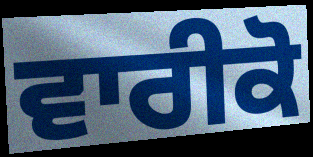
ਵਾਰੀਕੋ